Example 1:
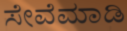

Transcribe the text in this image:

ಸೇವೆಮಾಡಿ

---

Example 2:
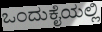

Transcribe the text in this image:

ಒಂದುಕೈಯಲ್ಲಿ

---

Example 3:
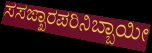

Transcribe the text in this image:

ಸಸಙ್ಖಾರಪರಿನಿಬ್ಬಾಯೀ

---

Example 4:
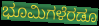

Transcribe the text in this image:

ಭೂಮಿಗಳೆರಡೂ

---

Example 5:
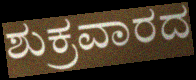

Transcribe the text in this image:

ಶುಕ್ರವಾರದ